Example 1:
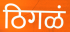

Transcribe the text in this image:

ठिगळं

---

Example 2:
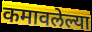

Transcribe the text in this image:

कमावलेल्या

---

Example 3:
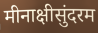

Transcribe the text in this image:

मीनाक्षीसुंदरम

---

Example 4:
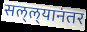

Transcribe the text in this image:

सल्ल्यानंतर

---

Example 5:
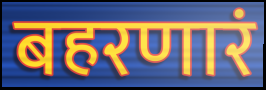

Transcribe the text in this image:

बहरणारं